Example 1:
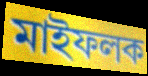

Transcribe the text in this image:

মাইফলক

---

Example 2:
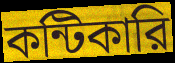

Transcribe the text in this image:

কন্টিকারি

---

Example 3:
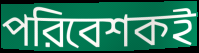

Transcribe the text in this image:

পরিবেশকই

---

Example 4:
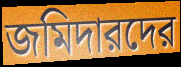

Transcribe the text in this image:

জমিদারদের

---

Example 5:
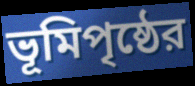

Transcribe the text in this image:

ভূমিপৃষ্ঠের